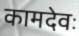
कामदेवः